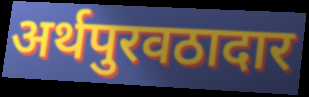
अर्थपुरवठादार